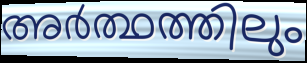
അർത്ഥത്തിലും